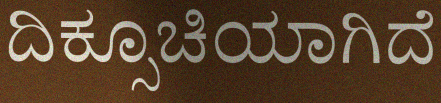
ದಿಕ್ಸೂಚಿಯಾಗಿದೆ